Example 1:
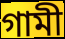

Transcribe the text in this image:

গামী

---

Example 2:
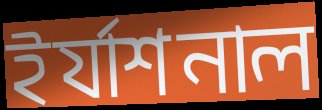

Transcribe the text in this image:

ইর্যাশনাল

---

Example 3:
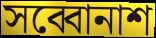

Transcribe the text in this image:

সব্বোনাশ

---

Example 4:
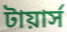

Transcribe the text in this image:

টায়ার্স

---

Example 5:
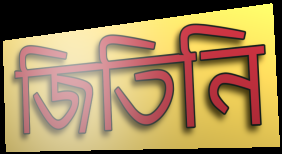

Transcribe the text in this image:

জিতিনি